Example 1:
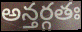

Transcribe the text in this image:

అన్తర్గతః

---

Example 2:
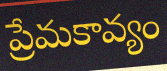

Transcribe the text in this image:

ప్రేమకావ్యం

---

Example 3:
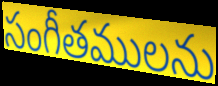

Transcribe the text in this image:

సంగీతములను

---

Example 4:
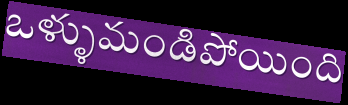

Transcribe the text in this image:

ఒళ్ళుమండిపోయింది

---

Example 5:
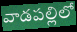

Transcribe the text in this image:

వాడపల్లిలో